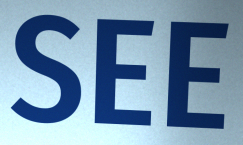
SEE